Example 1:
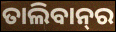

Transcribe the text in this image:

ତାଲିବାନ୍‌ର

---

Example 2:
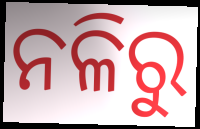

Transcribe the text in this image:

ନଳିରୁ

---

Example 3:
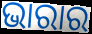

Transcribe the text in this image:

ଭାରାର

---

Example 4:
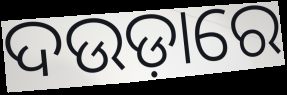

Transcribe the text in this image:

ଦଉଡ଼ାରେ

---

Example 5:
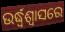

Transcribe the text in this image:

ଉର୍ଦ୍ଧ୍ଵଶ୍ୱାସରେ